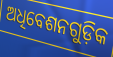
ଅଧିବେଶନଗୁଡ଼ିକ